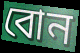
বোন